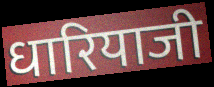
धारियाजी